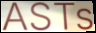
ASTs